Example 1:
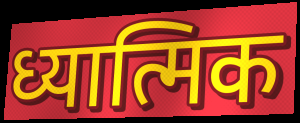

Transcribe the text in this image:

ध्यात्मिक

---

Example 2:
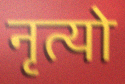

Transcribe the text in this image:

नृत्यो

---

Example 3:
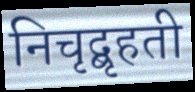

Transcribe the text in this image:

निचृद्बृहती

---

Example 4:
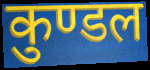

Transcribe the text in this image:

कुण्डल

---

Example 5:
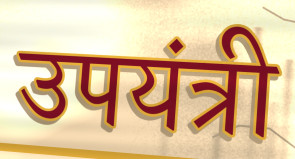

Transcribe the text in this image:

उपयंत्री